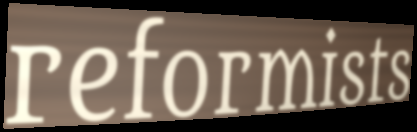
reformists